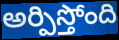
అర్పిస్తోంది